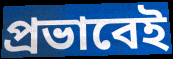
প্রভাবেই